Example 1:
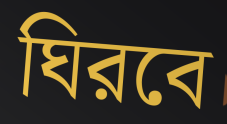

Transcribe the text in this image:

ঘিরবে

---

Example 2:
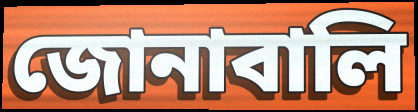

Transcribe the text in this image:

জোনাবালি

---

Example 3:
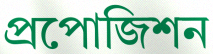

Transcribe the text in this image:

প্রপোজিশন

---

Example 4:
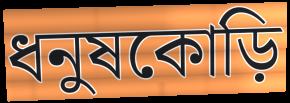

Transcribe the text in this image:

ধনুষকোড়ি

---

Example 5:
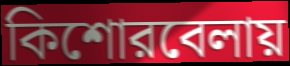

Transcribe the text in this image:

কিশোরবেলায়